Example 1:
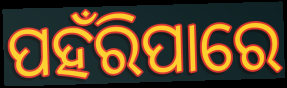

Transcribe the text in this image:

ପହଁରିପାରେ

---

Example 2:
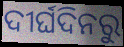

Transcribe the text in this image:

ଦୀର୍ଘଦିନରୁ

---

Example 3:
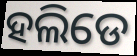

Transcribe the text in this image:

ହଲିଡେ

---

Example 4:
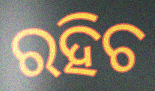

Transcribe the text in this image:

ରହିଚ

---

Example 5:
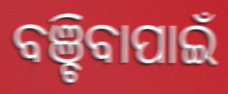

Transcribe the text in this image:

ବଞ୍ଚିବାପାଇଁ